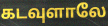
கடவுளாலே